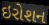
ઇરોશન